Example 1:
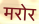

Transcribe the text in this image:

मरोर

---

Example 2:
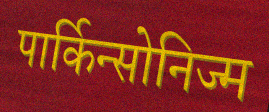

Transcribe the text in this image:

पार्किन्सोनिज्म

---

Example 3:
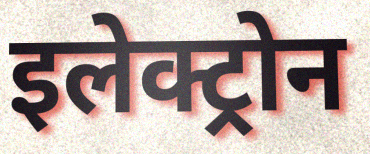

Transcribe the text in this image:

इलेक्ट्रोन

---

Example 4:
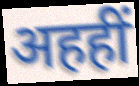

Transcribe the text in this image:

अहहीं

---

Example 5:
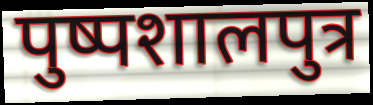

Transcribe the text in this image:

पुष्पशालपुत्र